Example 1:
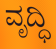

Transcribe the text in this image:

ವೃದ್ಧಿ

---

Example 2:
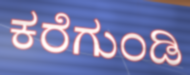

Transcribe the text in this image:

ಕರೆಗುಂಡಿ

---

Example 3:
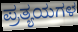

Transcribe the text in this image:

ಪ್ರತ್ಯಯಗಳ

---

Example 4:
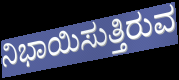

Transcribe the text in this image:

ನಿಭಾಯಿಸುತ್ತಿರುವ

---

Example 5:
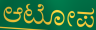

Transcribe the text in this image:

ಆಟೋಪ